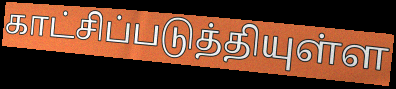
காட்சிப்படுத்தியுள்ள